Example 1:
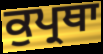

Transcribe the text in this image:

ਕੁਪ੍ਰਥਾ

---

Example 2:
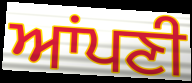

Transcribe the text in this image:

ਆਂਪਣੀ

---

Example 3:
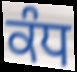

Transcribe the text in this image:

ਕੰਧ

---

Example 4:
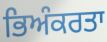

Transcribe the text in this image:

ਭਿਅੰਕਰਤਾ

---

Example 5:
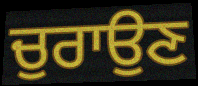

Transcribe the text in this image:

ਚੁਰਾਉਣ